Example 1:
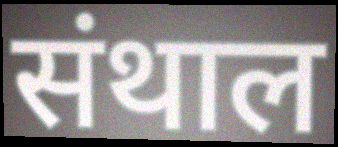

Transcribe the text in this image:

संथाल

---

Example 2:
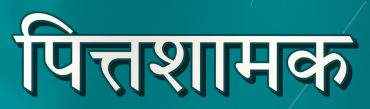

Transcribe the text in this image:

पित्तशामक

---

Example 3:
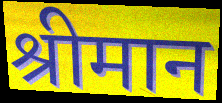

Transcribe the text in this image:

श्रीमान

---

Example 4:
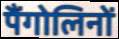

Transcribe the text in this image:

पैंगोलिनों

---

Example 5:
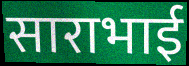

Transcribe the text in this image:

साराभाई